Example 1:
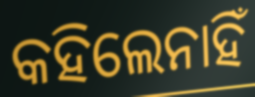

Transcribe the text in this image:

କହିଲେନାହିଁ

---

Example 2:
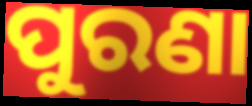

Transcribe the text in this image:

ପୁରଣା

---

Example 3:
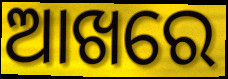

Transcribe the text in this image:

ଆଖରେ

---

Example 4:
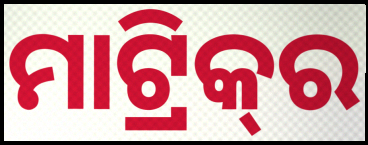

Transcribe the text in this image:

ମାଟ୍ରିକ୍‌ର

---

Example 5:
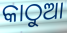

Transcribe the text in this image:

କାଠୁଆ